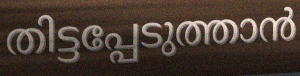
തിട്ടപ്പേടുത്താൻ